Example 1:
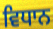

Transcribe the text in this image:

ਵਿਧਾਨ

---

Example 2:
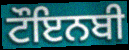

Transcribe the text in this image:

ਟੌਇਨਬੀ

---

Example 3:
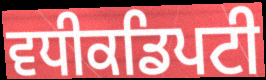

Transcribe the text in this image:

ਵਧੀਕਡਿਪਟੀ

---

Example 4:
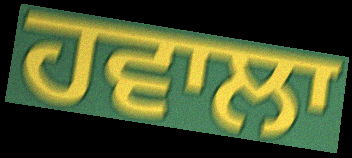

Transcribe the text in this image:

ਹਵਾਲਾ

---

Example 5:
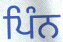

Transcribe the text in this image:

ਪਿੰਨ